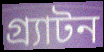
গ্র্যাটন